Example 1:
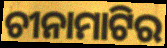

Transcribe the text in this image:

ଚୀନାମାଟିର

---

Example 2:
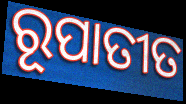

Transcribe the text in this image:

ରୂପାତୀତ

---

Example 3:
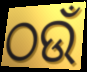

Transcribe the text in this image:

ଠଉଁ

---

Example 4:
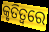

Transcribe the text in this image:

କୃତିତ୍ୱରେ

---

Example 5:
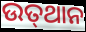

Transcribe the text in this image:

ଉତ୍‌ଥାନ